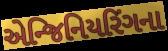
એન્જિનિયરિંગના